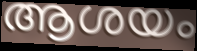
ആശയം